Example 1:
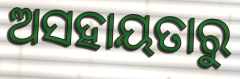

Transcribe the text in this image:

ଅସହାୟତାରୁ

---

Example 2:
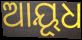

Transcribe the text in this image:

ଆୟୂଧ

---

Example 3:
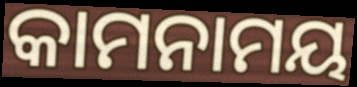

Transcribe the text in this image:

କାମନାମୟ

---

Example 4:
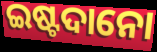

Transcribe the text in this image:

ଇଷ୍ଟଦାନୋ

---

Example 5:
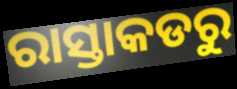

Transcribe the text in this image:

ରାସ୍ତାକଡରୁ